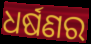
ଧର୍ଷଣର